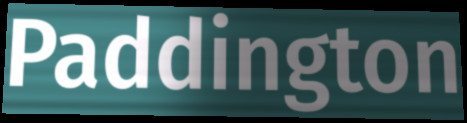
Paddington